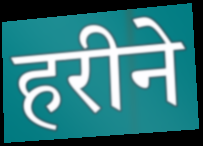
हरीने